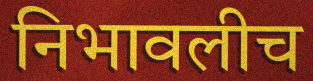
निभावलीच